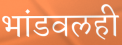
भांडवलही